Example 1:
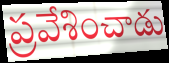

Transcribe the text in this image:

ప్రవేశించాడు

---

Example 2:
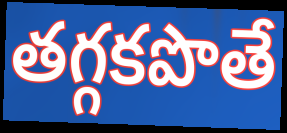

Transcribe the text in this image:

తగ్గకపొతే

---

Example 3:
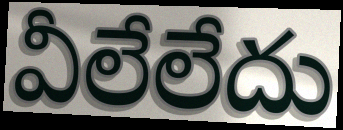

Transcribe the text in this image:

వీలేలేదు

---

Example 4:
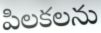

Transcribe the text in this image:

పిలకలను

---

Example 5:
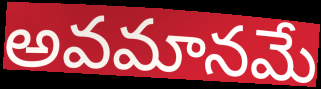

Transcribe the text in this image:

అవమానమే